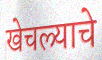
खेचल्याचे